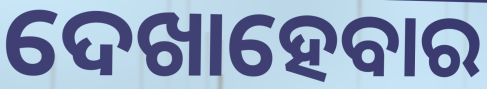
ଦେଖାହେବାର